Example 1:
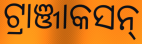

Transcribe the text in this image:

ଟ୍ରାଞ୍ଜାକସନ୍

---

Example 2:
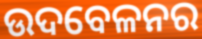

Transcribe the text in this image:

ଉଦବେଳନର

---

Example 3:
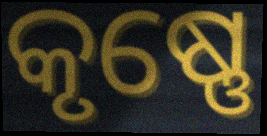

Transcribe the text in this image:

କୃଷ୍ଣେ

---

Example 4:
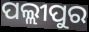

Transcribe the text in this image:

ପଲ୍ଲୀପୁର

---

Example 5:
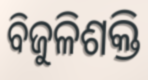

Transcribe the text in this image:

ବିଜୁଳିଶକ୍ତି